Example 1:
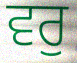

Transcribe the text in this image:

ਵਰੁ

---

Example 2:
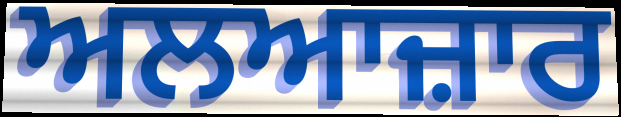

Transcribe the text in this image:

ਅਲਆਜ਼ਾਰ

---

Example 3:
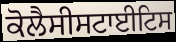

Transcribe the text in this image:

ਕੋਲੈਸੀਸਟਾਈਟਿਸ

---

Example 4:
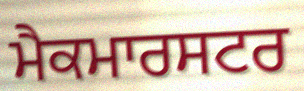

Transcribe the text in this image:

ਮੈਕਮਾਰਸਟਰ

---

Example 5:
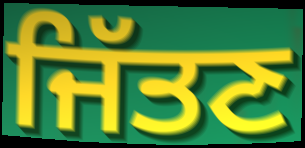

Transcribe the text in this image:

ਜਿੱਤਣ